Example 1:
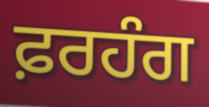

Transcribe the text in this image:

ਫ਼ਰਹੰਗ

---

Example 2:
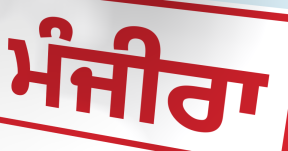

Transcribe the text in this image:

ਮੰਜੀਰਾ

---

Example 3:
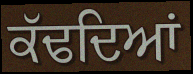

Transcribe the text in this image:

ਕੱਢਦਿਆਂ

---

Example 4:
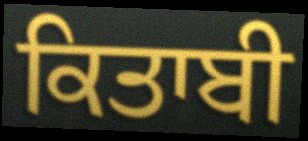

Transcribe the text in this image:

ਕਿਤਾਬੀ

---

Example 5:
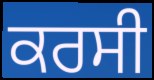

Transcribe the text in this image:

ਕਰਸੀ